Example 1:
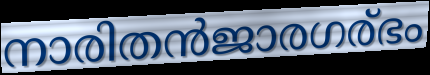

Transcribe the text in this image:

നാരിതൻജാരഗര്ഭം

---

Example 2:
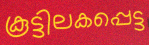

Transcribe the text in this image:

കൂട്ടിലകപ്പെട്ട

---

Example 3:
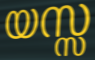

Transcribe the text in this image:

യസ്സ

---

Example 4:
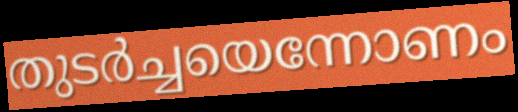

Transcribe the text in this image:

തുടർച്ചയെന്നോണം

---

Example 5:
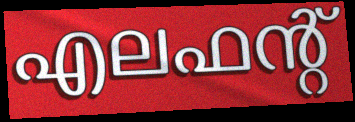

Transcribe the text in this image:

എലഫന്റ്